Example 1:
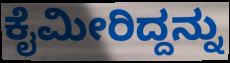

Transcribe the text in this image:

ಕೈಮೀರಿದ್ದನ್ನು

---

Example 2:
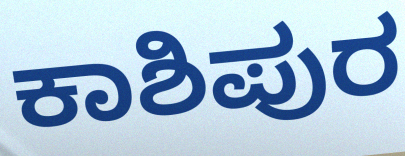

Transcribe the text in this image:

ಕಾಶಿಪುರ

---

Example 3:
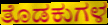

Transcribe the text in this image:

ತೊಡಕುಗಳ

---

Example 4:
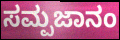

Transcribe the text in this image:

ಸಮ್ಪಜಾನಂ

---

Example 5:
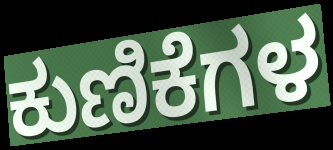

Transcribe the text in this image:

ಕುಣಿಕೆಗಳ